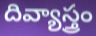
దివ్యాస్త్రం